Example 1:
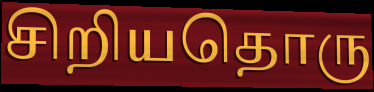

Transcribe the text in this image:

சிறியதொரு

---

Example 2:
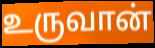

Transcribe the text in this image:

உருவான்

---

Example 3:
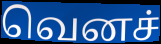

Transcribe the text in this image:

வெனச்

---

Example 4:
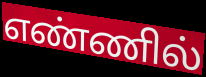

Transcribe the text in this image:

எண்ணில்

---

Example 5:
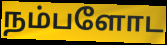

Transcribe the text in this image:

நம்பளோட